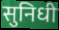
सुनिधी